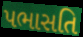
પભાસતિ